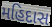
મહિદાસ